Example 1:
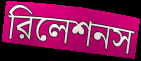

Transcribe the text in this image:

রিলেশনস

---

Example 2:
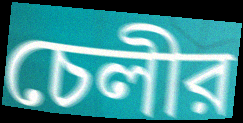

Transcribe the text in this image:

চেলীর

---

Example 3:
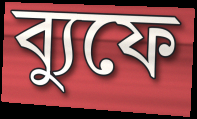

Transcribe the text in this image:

ব্যুফে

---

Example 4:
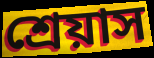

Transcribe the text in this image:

শ্রেয়াস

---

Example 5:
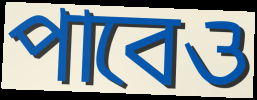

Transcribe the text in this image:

পাবেও